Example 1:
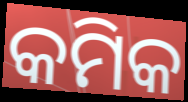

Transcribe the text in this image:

କମିକ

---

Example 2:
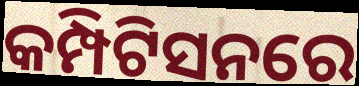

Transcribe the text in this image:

କମ୍ପିଟିସନରେ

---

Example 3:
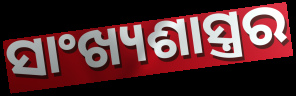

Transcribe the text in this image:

ସାଂଖ୍ୟଶାସ୍ତ୍ରର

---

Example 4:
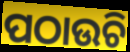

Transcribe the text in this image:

ପଠାଉଚି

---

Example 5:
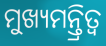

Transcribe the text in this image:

ମୁଖ୍ୟମନ୍ତ୍ରିତ୍ବ